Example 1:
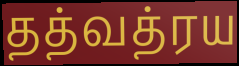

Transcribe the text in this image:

தத்வத்ரய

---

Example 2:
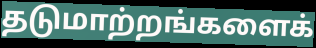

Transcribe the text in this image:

தடுமாற்றங்களைக்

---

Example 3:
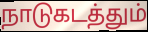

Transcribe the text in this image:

நாடுகடத்தும்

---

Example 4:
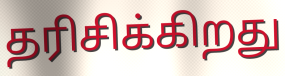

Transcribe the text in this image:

தரிசிக்கிறது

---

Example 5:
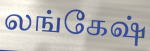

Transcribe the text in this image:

லங்கேஷ்